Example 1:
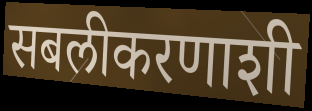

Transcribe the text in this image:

सबलीकरणाशी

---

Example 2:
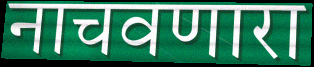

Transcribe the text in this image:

नाचवणारा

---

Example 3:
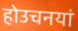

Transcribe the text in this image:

होउचनयां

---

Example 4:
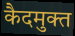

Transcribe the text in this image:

कैदमुक्त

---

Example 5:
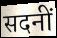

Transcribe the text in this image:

सदनीं